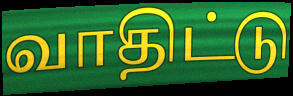
வாதிட்டு